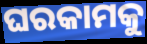
ଘରକାମକୁ